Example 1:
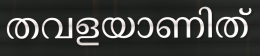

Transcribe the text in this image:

തവളയാണിത്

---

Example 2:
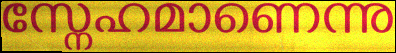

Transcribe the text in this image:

സ്നേഹമാണെന്നു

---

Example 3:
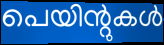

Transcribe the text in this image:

പെയിന്റുകൾ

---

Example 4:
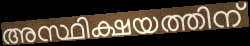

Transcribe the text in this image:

അസ്ഥിക്ഷയത്തിന്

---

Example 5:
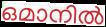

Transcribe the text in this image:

ഒമാനിൽ